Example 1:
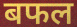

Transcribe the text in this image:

बफल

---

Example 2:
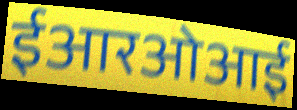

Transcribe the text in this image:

ईआरओआई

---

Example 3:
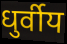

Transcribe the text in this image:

धुर्वीय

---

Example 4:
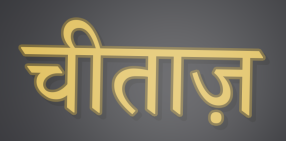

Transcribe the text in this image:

चीताज़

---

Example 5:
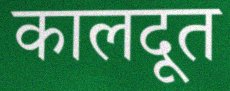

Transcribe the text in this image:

कालदूत